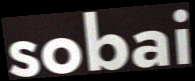
sobai